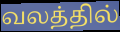
வலத்தில்